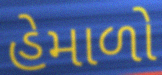
હેમાળો